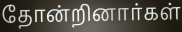
தோன்றினார்கள்